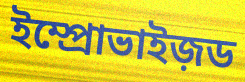
ইম্প্রোভাইজ়ড